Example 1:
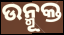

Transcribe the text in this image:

ଉନ୍ମୂକ୍ତ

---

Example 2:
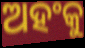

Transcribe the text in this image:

ଅହଂକୁ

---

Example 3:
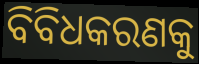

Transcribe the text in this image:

ବିବିଧକରଣକୁ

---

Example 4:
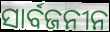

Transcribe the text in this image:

ସାର୍ବଜନୀନ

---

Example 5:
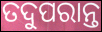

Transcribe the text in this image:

ତଦୁପରାନ୍ତ